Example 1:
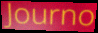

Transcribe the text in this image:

Journo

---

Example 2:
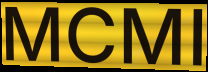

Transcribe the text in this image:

MCMI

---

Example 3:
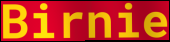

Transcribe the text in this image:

Birnie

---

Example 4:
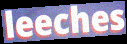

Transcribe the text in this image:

leeches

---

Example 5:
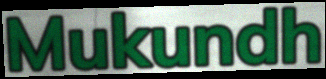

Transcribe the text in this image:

Mukundh